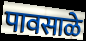
पावसाळे